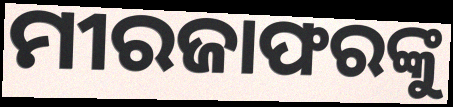
ମୀରଜାଫରଙ୍କୁ